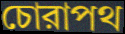
চোরাপথ